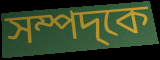
সম্পদ্‌কে